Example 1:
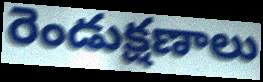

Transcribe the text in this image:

రెండుక్షణాలు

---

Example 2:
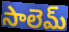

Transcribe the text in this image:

సాలెమ్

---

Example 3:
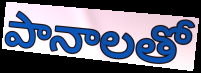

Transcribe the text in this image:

పానాలతో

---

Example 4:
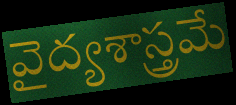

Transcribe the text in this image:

వైద్యశాస్త్రమే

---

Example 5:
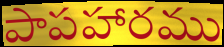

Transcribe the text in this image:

పాపహారము